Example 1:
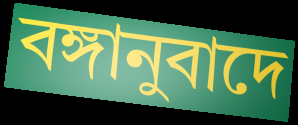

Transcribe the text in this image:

বঙ্গানুবাদে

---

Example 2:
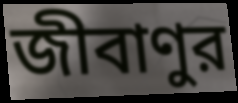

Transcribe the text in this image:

জীবাণুর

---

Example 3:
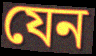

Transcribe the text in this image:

যেন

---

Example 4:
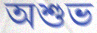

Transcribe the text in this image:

অশুভ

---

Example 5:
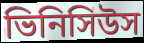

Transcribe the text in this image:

ভিনিসিউস